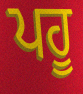
ਪਹੂ